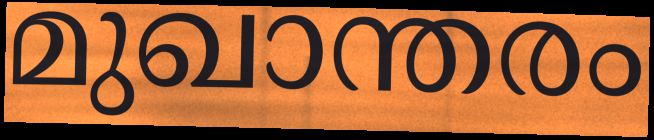
മുഖാന്തരം